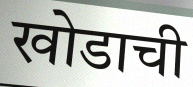
खोडाची